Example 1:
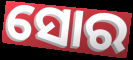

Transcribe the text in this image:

ସୋର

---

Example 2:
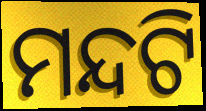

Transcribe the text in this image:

ମନ୍ଦଟି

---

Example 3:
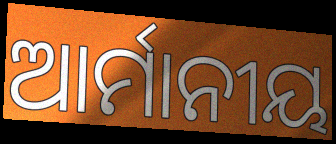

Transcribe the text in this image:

ଆର୍ମାନୀୟ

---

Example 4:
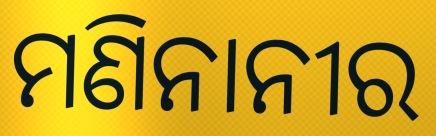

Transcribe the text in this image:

ମଣିନାନୀର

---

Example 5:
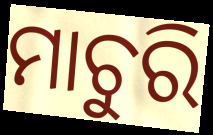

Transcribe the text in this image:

ମାଚୁରି